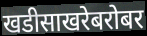
खडीसाखरेबरोबर